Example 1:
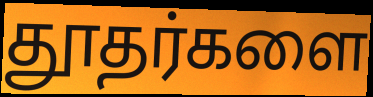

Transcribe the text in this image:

தூதர்களை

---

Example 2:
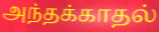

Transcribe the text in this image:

அந்தக்காதல்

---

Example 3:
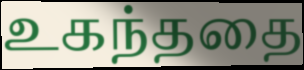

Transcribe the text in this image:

உகந்ததை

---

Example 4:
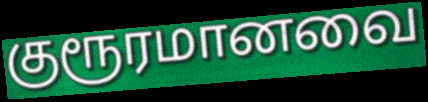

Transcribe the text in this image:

குரூரமானவை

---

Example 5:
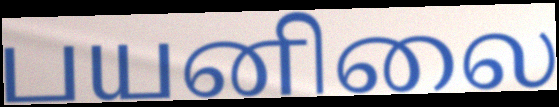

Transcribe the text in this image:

பயனிலை